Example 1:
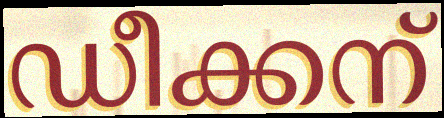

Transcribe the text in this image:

ഡീക്കന്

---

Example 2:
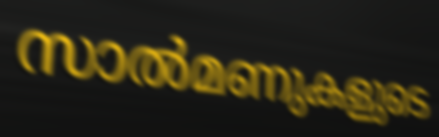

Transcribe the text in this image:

സാൽമണുകളുടെ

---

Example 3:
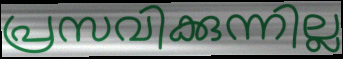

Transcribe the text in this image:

പ്രസവിക്കുന്നില്ല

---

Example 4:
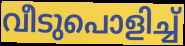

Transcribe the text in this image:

വീടുപൊളിച്ച്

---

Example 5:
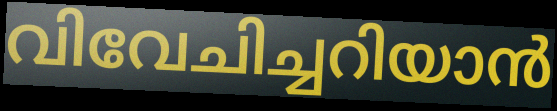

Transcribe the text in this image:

വിവേചിച്ചറിയാൻ